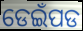
ଡେଇଁପଡ